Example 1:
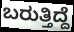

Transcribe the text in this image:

ಬರುತ್ತಿದ್ದೆ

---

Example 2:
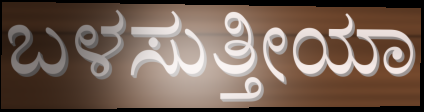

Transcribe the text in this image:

ಬಳಸುತ್ತೀಯಾ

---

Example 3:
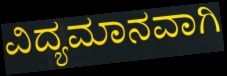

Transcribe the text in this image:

ವಿದ್ಯಮಾನವಾಗಿ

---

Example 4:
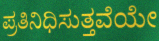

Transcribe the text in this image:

ಪ್ರತಿನಿಧಿಸುತ್ತವೆಯೇ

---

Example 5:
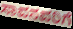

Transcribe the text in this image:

ಸಾವನವರಿಗೆ